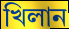
খিলান